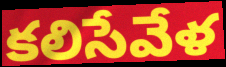
కలిసేవేళ